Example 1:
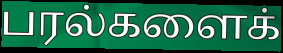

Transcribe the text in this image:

பரல்களைக்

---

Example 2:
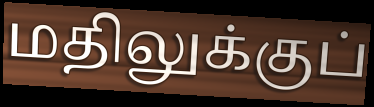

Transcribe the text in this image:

மதிலுக்குப்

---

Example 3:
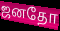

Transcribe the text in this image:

ஜனதோ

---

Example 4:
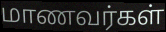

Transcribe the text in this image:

மாணவர்கள்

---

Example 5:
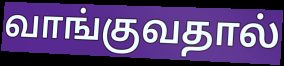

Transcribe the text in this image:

வாங்குவதால்